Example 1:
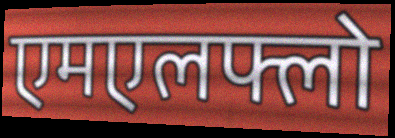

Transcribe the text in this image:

एमएलफ्लो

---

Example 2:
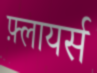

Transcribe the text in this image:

फ़्लायर्स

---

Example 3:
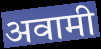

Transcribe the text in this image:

अवामी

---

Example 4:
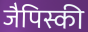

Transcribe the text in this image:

जैपिस्की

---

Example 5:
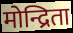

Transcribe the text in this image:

मोन्द्रिता